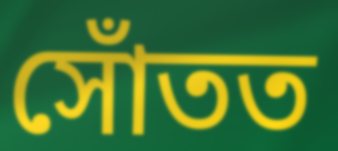
সোঁতত